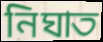
নিঘাত